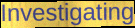
Investigating